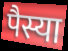
पैस्या